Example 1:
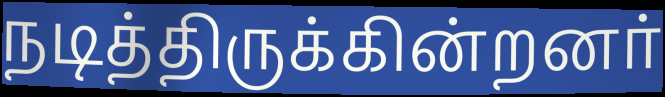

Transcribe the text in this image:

நடித்திருக்கின்றனர்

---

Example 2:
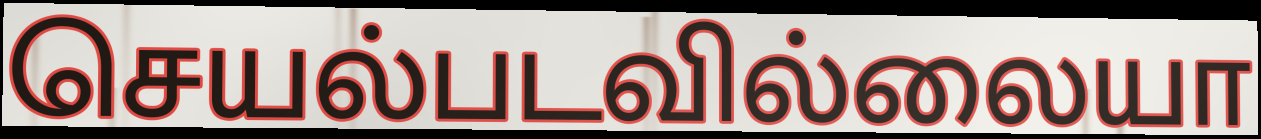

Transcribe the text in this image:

செயல்படவில்லையா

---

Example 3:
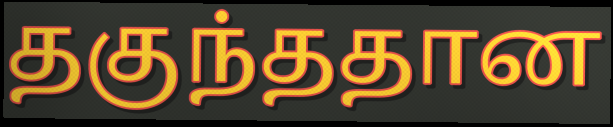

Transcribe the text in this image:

தகுந்ததான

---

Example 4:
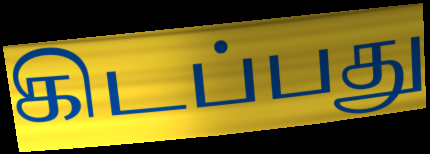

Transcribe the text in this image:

கிடப்பது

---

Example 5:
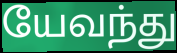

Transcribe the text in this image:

யேவந்து